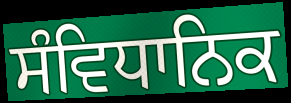
ਸੰਵਿਧਾਨਿਕ